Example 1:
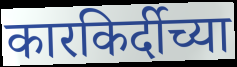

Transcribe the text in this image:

कारकिर्दीच्या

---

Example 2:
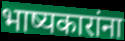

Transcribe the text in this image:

भाष्यकारांना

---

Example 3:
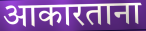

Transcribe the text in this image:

आकारताना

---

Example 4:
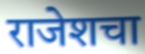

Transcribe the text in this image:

राजेशचा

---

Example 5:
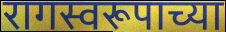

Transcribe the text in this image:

रागस्वरूपाच्या